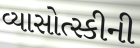
વ્યાસોત્સ્કીની